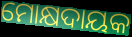
ମୋକ୍ଷଦାୟକ